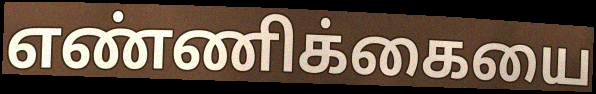
எண்ணிக்கையை